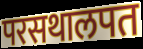
परसथालपत